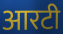
आरटी